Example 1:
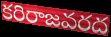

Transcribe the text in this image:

కరిరాజవరద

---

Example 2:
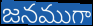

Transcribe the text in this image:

జనముగా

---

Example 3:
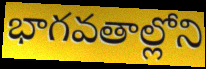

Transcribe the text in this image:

భాగవతాల్లోని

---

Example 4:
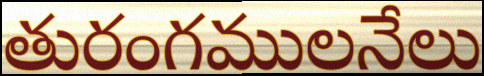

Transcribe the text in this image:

తురంగములనేలు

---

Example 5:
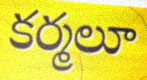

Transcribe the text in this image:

కర్మలూ